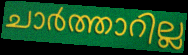
ചാർത്താറില്ല